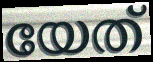
യേത്